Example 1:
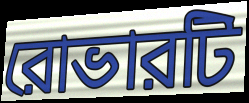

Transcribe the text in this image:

রোভারটি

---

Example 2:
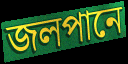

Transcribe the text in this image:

জলপানে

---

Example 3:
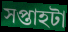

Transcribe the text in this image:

সপ্তাহটা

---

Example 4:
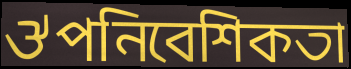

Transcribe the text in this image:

ঔপনিবেশিকতা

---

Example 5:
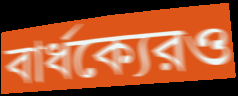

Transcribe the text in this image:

বার্ধক্যেরও